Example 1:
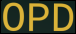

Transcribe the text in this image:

OPD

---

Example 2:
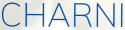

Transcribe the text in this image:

CHARNI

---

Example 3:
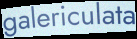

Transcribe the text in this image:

galericulata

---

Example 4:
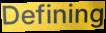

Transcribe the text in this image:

Defining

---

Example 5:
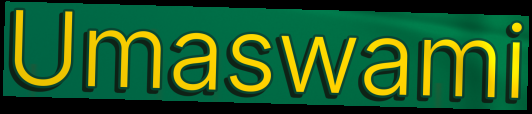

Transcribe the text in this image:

Umaswami